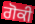
ਗੋਕੀ